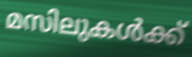
മസിലുകൾക്ക്